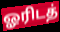
ஓரிடத்